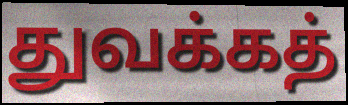
துவக்கத்